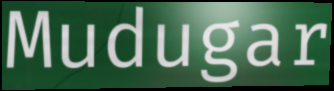
Mudugar